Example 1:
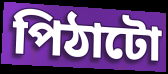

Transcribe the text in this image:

পিঠাটো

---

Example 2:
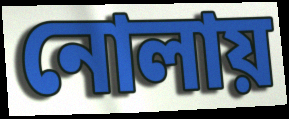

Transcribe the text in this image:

নোলায়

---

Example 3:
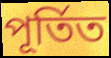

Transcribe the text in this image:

পূৰ্তিত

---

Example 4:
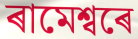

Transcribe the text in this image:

ৰামেশ্বৰে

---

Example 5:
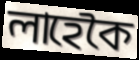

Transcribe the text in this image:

লাহেকৈ